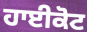
ਹਾਈਕੋਟ